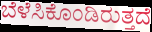
ಬೆಳೆಸಿಕೊಂಡಿರುತ್ತದೆ